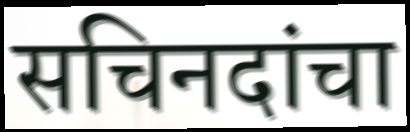
सचिनदांचा